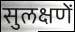
सुलक्षणें